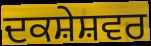
ਦਕਸ਼ੇਸ਼ਵਰ